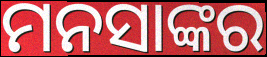
ମନସାଙ୍କର